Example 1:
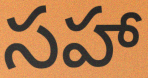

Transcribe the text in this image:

సహా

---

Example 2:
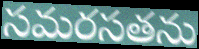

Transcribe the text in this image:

సమరసతను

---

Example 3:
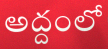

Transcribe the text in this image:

అద్దంలో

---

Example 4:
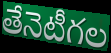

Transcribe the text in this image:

తేనెటీగల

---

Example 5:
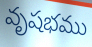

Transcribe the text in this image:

వృషభము